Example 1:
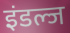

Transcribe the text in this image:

इंडल्ज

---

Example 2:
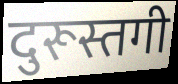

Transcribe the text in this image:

दुरूस्तगी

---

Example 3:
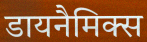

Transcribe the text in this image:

डायनैमिक्‍स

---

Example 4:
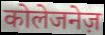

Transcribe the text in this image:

कोलेजनेज़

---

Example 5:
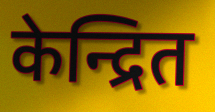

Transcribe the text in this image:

केन्द्रित